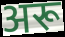
अरू